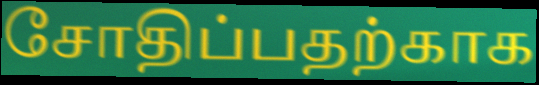
சோதிப்பதற்காக